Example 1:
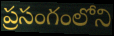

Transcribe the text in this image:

ప్రసంగంలోని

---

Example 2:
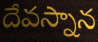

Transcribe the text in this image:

దేవస్నాన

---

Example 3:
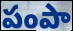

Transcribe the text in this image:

పంపా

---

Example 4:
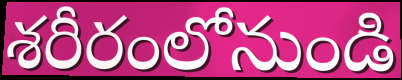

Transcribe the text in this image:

శరీరంలోనుండి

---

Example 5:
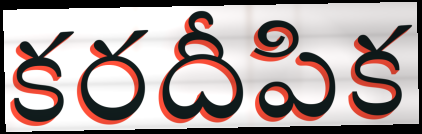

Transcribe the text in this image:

కరదీపిక